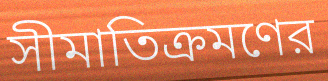
সীমাতিক্রমণের